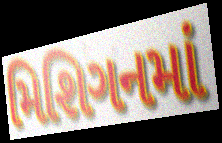
મિશિગનમાં